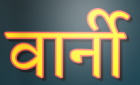
वार्नी